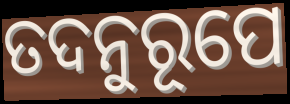
ତଦନୁରୂପେ